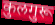
कुलगुरू